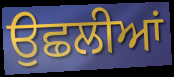
ਉਛਲੀਆਂ